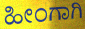
ಹೀಂಗಾಗಿ